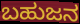
ಬಹುಜನ